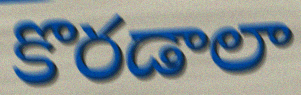
కొరడాలా